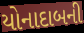
યોનાદાબની